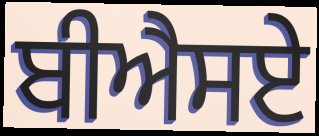
ਬੀਐਸਏ